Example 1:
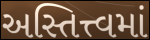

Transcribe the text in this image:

અસ્તિત્ત્વમાં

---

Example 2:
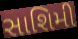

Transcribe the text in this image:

સાશિમી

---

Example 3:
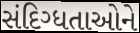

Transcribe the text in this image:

સંદિગ્ધતાઓને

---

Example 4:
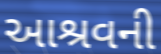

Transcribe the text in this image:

આશ્રવની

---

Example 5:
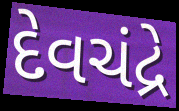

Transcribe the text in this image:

દેવચંદ્રે